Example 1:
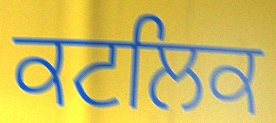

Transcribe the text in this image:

ਕਟਲਿਕ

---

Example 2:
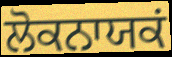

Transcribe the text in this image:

ਲੋਕਨਾਯਕਂ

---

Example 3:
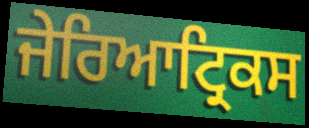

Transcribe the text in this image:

ਜੇਰਿਆਟ੍ਰਿਕਸ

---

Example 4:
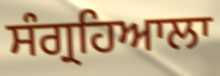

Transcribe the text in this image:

ਸੰਗ੍ਰਹਿਆਲਾ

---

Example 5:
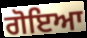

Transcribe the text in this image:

ਗੋਇਆ